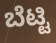
ಬೆಟ್ಟಿ